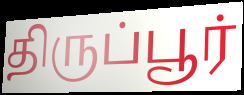
திருப்பூர்